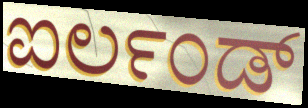
ಐರ್ಲಂಡ್